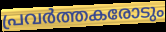
പ്രവർത്തകരോടും